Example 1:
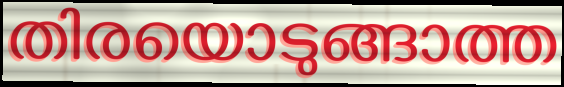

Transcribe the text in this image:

തിരയൊടുങ്ങാത്ത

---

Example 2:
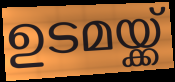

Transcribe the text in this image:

ഉടമയ്ക്ക്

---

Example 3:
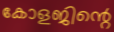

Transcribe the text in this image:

കോളജിന്റെ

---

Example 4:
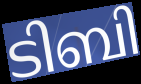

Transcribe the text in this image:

ടിബി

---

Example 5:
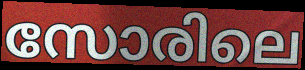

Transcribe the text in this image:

സോരിലെ